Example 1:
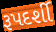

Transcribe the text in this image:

રૂપદર્શી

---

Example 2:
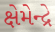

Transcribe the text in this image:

ક્ષેમેન્દ્રે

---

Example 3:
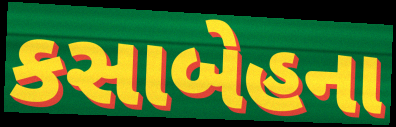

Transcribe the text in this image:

કસાબેહના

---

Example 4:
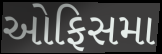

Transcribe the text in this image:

ઓફિસમા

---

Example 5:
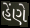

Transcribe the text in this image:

હેંણે